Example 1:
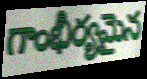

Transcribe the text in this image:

గాంభీర్యమైన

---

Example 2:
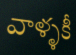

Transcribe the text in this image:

వాళ్ళకీ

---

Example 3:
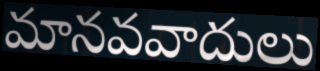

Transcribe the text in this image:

మానవవాదులు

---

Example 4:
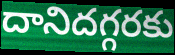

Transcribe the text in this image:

దానిదగ్గరకు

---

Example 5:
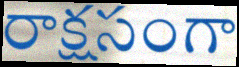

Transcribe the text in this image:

రాక్షసంగా